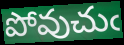
పోవుచుఁ